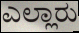
ಎಲ್ಲಾರು